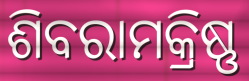
ଶିବରାମକ୍ରିଷ୍ଣ